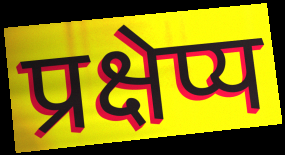
प्रक्षेप्य